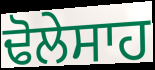
ਢੋਲੇਸਾਹ